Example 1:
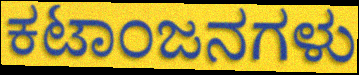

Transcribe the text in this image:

ಕಟಾಂಜನಗಳು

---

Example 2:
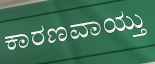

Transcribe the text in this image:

ಕಾರಣವಾಯ್ತು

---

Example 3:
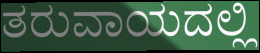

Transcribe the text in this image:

ತರುವಾಯದಲ್ಲಿ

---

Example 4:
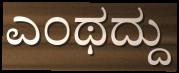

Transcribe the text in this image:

ಎಂಥದ್ದು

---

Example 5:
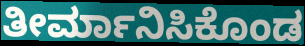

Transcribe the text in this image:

ತೀರ್ಮಾನಿಸಿಕೊಂಡ